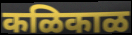
कळिकाळ